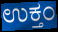
ಉಕ್ತಂ